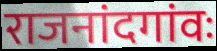
राजनांदगांवः